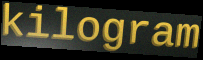
kilogram